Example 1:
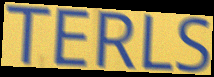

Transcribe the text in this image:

TERLS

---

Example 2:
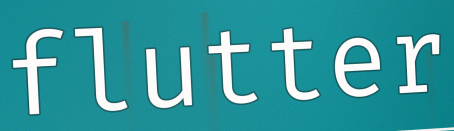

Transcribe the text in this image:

flutter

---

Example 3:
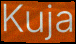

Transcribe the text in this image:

Kuja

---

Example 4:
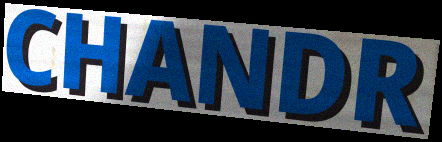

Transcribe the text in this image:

CHANDR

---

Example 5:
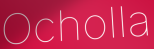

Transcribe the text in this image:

Ocholla